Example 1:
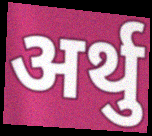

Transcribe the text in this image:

अर्थु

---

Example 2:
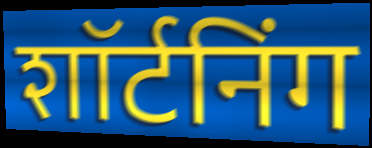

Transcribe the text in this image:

शॉर्टनिंग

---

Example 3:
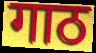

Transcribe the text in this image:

गाठ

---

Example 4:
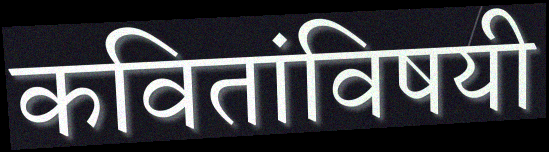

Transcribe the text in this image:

कवितांविषयी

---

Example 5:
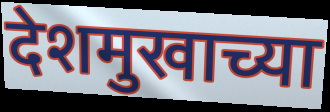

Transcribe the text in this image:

देशमुखाच्या